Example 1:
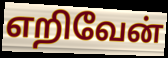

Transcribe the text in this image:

எறிவேன்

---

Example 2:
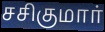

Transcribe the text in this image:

சசிகுமார்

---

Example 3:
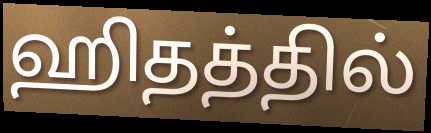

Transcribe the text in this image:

ஹிதத்தில்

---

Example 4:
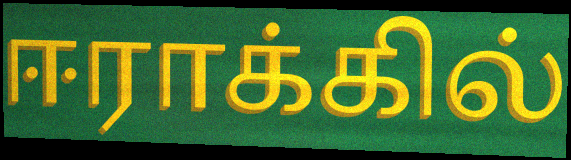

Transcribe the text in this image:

ஈராக்கில்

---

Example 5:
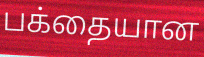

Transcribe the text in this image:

பக்தையான